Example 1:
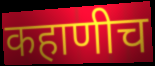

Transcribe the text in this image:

कहाणीच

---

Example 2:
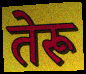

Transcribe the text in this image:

तेरू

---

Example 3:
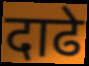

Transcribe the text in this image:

दाढे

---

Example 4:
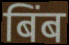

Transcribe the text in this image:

बिंब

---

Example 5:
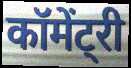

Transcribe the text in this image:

कॉमेंट्री